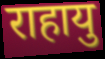
राहायु